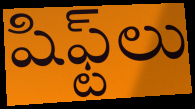
షిఫ్ట్‌లు